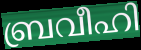
ബ്രവീഹി